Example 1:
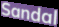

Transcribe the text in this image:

Sandal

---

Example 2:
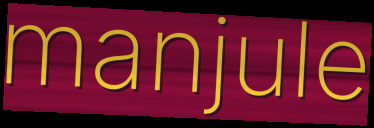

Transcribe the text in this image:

manjule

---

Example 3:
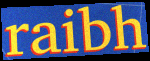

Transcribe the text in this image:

raibh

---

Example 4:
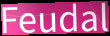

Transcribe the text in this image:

Feudal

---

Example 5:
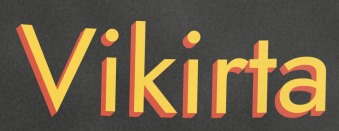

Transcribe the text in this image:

Vikirta